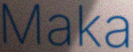
Maka